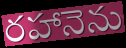
రహానెను